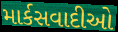
માર્કસવાદીઓ